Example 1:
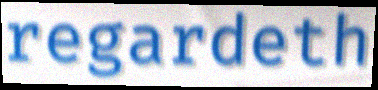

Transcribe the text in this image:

regardeth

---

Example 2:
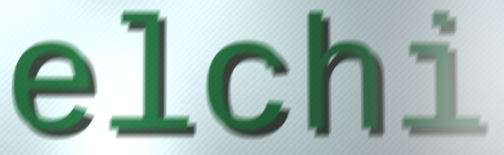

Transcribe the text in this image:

elchi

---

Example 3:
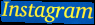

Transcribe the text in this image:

Instagram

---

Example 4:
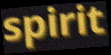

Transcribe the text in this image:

spirit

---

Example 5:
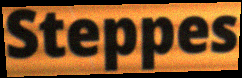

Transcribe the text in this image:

Steppes